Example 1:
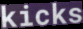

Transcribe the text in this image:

kicks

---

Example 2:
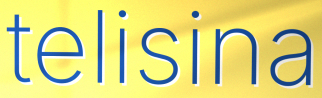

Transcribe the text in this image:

telisina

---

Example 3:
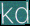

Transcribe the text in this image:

kd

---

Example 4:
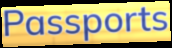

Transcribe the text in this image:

Passports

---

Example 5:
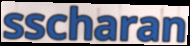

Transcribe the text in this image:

sscharan